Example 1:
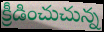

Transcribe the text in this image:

క్రీడించుచున్న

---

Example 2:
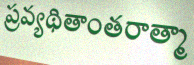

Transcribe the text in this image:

ప్రవ్యథితాంతరాత్మా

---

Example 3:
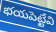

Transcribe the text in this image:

భయపెట్టేవి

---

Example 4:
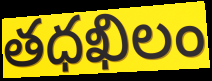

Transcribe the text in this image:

తధఖిలం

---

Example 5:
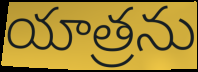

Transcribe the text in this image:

యాత్రను